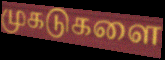
முகடுகளை